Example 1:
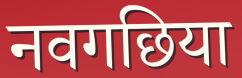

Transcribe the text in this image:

नवगछिया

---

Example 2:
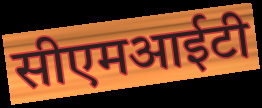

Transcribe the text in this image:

सीएमआईटी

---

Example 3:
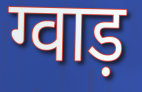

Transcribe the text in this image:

ग्वाड़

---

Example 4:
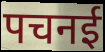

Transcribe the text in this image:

पचनई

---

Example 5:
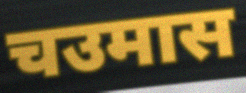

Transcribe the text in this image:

चउमास